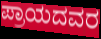
ಪ್ರಾಯದವರ